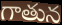
గాతున